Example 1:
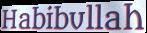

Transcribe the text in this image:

Habibullah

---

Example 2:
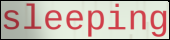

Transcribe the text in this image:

sleeping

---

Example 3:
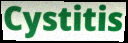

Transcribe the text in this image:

Cystitis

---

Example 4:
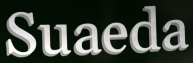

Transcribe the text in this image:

Suaeda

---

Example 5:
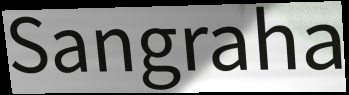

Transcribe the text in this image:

Sangraha